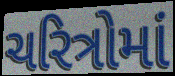
ચરિત્રોમાં